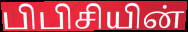
பிபிசியின்